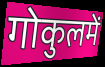
गोकुलमें